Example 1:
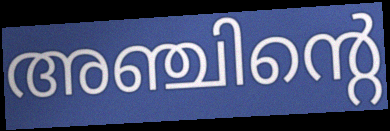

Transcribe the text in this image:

അഞ്ചിന്റെ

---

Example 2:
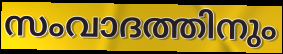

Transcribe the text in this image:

സംവാദത്തിനും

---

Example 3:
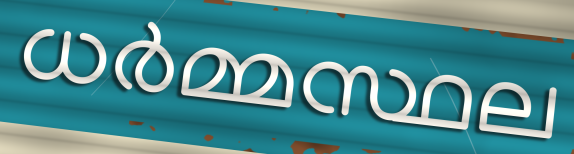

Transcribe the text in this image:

ധർമ്മസ്ഥല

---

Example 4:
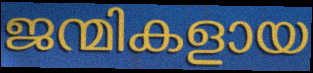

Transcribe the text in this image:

ജന്മികളായ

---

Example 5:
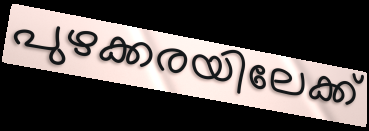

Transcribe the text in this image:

പുഴക്കരയിലേക്ക്